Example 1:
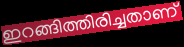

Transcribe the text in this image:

ഇറങ്ങിത്തിരിച്ചതാണ്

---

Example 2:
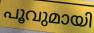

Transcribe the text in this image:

പൂവുമായി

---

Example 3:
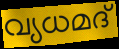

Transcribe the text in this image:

വ്യധമദ്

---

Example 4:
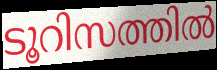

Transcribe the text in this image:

ടൂറിസത്തിൽ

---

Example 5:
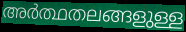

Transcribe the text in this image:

അർത്ഥതലങ്ങളുള്ള